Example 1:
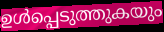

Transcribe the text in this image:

ഉൾപ്പെടുത്തുകയും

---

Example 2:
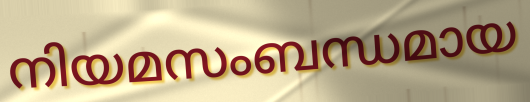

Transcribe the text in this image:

നിയമസംബന്ധമായ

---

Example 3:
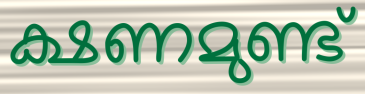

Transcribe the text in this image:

ക്ഷണമുണ്ട്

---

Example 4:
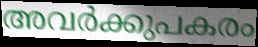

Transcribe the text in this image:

അവർക്കുപകരം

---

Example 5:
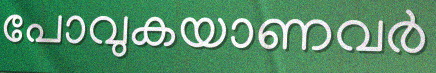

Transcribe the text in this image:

പോവുകയാണവർ